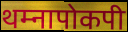
थम्नापोकपी